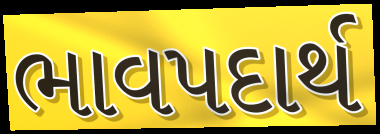
ભાવપદાર્થ